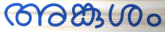
അങ്കുശം